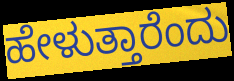
ಹೇಳುತ್ತಾರೆಂದು